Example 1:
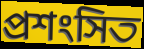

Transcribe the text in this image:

প্রশংসিত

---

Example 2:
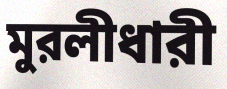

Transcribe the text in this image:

মুরলীধারী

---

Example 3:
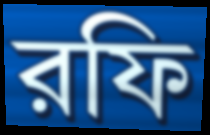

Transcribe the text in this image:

রফি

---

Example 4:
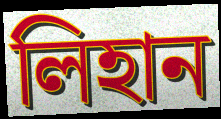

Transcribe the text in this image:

লিহান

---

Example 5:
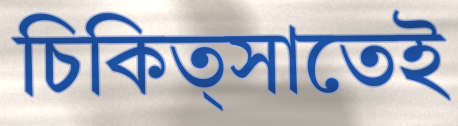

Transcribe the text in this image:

চিকিত্সাতেই